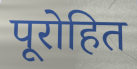
पूरोहित